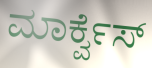
ಮಾರ್ಕ್ವೆಸ್